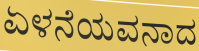
ಏಳನೆಯವನಾದ